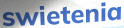
swietenia